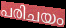
പരിചയം